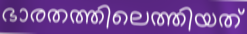
ഭാരതത്തിലെത്തിയത്